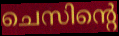
ചെസിന്റെ